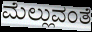
ಮೆಲ್ಲುವಂತೆ